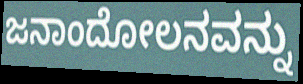
ಜನಾಂದೋಲನವನ್ನು